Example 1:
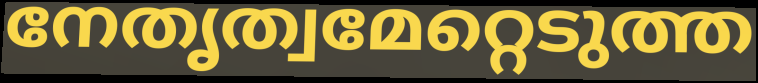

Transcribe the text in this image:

നേതൃത്വമേറ്റെടുത്ത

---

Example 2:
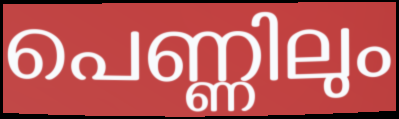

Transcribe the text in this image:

പെണ്ണിലും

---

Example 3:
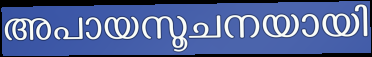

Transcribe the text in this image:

അപായസൂചനയായി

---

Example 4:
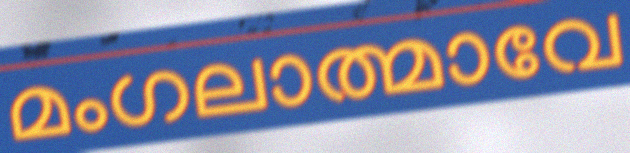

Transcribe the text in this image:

മംഗലാത്മാവേ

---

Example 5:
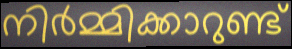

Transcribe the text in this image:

നിർമ്മിക്കാറുണ്ട്